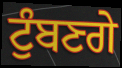
ਟੁੰਬਣਗੇ